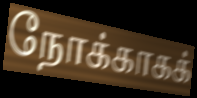
நோக்காகக்